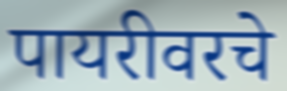
पायरीवरचे